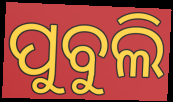
ପୁବୁଲି